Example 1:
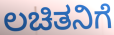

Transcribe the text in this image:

ಲಚಿತನಿಗೆ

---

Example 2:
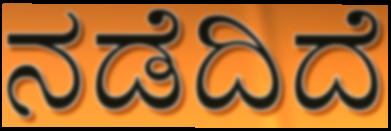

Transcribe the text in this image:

ನಡೆದಿದೆ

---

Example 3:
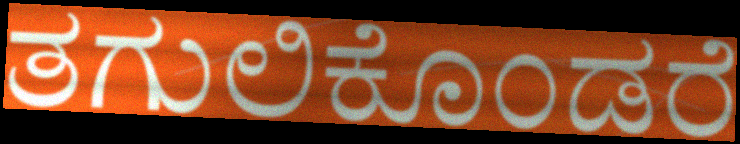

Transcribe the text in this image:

ತಗುಲಿಕೊಂಡರೆ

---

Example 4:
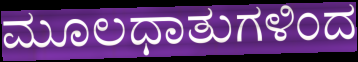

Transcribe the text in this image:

ಮೂಲಧಾತುಗಳಿಂದ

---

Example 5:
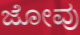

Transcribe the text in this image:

ಜೋವು